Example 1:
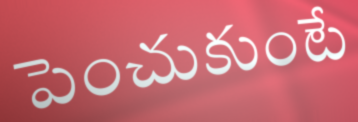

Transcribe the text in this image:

పెంచుకుంటే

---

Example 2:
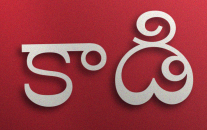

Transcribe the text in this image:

కాడి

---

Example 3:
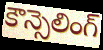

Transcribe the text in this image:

కౌన్సెలింగ్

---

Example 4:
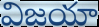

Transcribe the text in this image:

విజయా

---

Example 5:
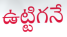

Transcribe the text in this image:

ఉట్టిగనే